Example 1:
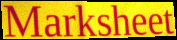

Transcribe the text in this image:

Marksheet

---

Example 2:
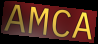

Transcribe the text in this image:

AMCA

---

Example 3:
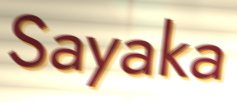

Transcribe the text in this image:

Sayaka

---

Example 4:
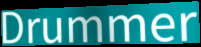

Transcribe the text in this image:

Drummer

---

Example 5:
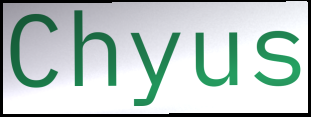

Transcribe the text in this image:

Chyus